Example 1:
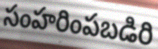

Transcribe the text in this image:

సంహరింపబడిరి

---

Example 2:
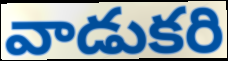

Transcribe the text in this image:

వాడుకరి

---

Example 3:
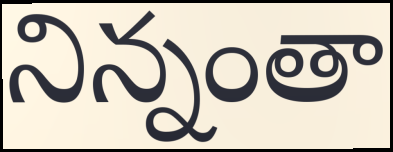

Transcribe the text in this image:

నిన్నంతా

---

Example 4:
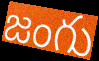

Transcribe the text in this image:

జంగు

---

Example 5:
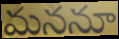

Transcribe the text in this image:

మననూ